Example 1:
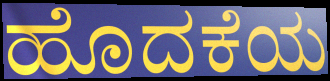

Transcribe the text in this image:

ಹೊದಕೆಯ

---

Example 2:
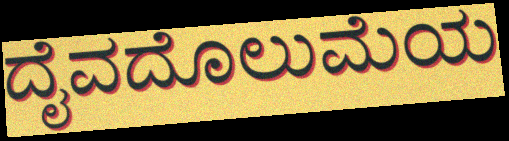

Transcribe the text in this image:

ದೈವದೊಲುಮೆಯ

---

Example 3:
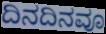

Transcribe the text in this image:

ದಿನದಿನವೂ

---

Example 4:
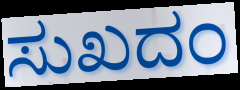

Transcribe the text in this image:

ಸುಖದಂ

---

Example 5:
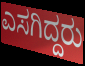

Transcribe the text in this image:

ಎಸಗಿದ್ದರು